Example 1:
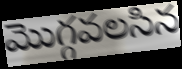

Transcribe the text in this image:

మొగ్గవలసిన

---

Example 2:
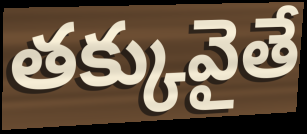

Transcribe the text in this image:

తక్కువైతే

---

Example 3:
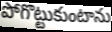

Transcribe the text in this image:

పోగొట్టుకుంటాను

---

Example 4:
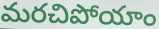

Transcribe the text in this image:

మరచిపోయాం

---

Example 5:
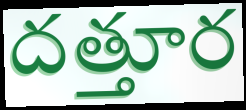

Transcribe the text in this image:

దత్తూర